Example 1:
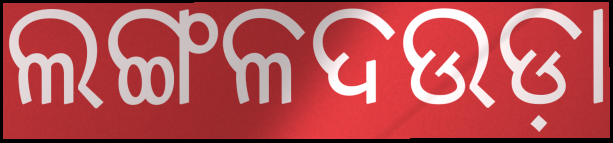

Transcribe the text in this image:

ଲଙ୍ଗଳଦଉଡ଼ା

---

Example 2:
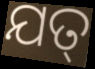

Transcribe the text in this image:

ଯତ୍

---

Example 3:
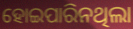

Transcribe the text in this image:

ହୋଇପାରିନଥିଲା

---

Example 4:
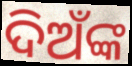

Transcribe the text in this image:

ଦିଅଁଙ୍କ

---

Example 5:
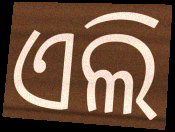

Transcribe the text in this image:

ଏଲି